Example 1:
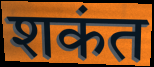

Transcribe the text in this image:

शकंत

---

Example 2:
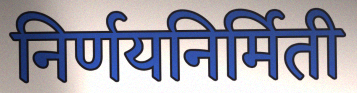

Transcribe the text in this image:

निर्णयनिर्मिती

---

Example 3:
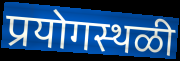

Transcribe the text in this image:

प्रयोगस्थळी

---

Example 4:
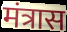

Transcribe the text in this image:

मंत्रास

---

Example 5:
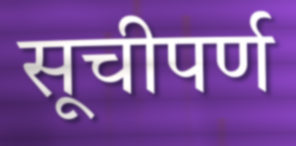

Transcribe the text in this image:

सूचीपर्ण